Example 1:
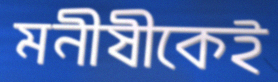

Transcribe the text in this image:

মনীষীকেই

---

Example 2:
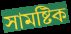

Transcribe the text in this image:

সামষ্টিক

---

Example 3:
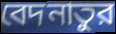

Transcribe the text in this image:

বেদনাতুর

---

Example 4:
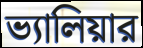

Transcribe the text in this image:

ভ্যালিয়ার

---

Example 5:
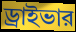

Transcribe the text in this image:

ড্রাইভার